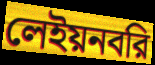
লেইয়নবরি